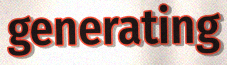
generating